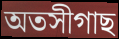
অতসীগাছ